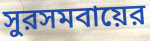
সুরসমবায়ের